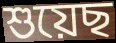
শুয়েছ